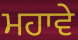
ਮਹਾਵੇ